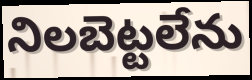
నిలబెట్టలేను